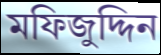
মফিজুদ্দিন